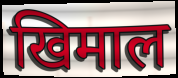
खिमाल